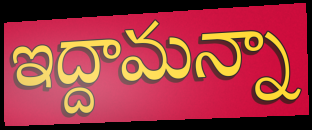
ఇద్దామన్నా